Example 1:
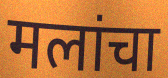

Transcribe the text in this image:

मलांचा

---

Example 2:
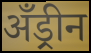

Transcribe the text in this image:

अँड्रीन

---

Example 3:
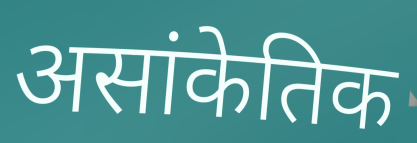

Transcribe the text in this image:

असांकेतिक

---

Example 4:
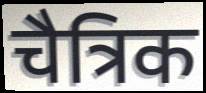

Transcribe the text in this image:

चैत्रिक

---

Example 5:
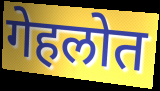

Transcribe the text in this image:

गेहलोत